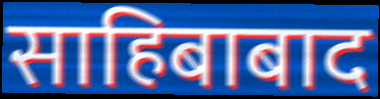
साहिबाबाद